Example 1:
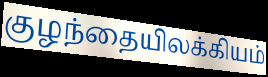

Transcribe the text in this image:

குழந்தையிலக்கியம்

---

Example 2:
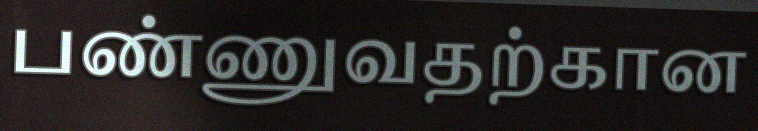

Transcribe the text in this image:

பண்ணுவதற்கான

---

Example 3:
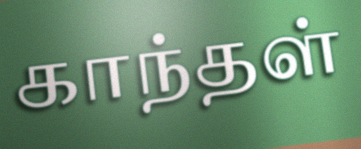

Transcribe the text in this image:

காந்தள்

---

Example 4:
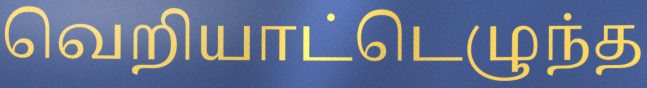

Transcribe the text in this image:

வெறியாட்டெழுந்த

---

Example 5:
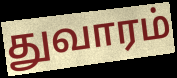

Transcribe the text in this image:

துவாரம்